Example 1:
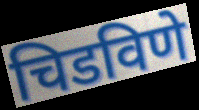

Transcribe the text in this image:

चिडविणे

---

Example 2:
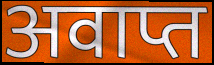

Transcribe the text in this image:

अवाप्त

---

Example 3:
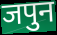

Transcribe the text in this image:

जपुन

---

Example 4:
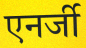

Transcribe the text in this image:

एनर्जी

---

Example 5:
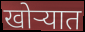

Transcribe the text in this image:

खोर्‍यात